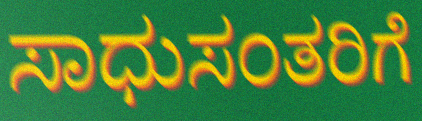
ಸಾಧುಸಂತರಿಗೆ